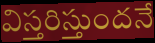
విస్తరిస్తుందనే